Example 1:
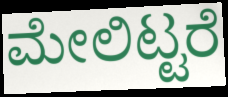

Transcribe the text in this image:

ಮೇಲಿಟ್ಟರೆ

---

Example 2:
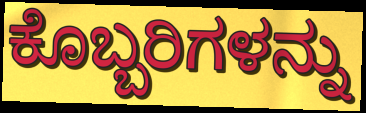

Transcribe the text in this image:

ಕೊಬ್ಬರಿಗಳನ್ನು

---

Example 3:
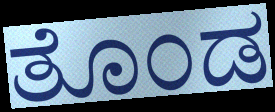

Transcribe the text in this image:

ತೊಂಡ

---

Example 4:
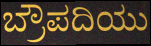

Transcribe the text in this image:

ಬ್ರೌಪದಿಯು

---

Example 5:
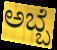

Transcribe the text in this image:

ಅಬ್ಬೆ